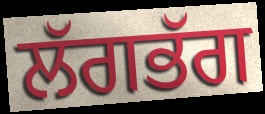
ਲੱਗਭੱਗ